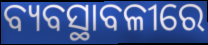
ବ୍ୟବସ୍ଥାବଳୀରେ